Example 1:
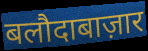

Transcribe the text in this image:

बलौदाबाज़ार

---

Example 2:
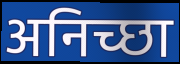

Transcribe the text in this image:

अनिच्छा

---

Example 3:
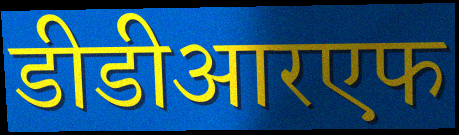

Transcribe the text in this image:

डीडीआरएफ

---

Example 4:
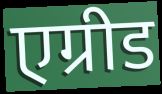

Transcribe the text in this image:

एग्रीड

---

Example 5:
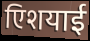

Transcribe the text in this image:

एिशयाई